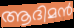
ആദിമൻ